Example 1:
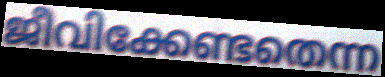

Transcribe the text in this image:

ജീവിക്കേണ്ടതെന്ന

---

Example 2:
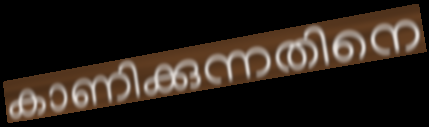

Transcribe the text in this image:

കാണിക്കുന്നതിനെ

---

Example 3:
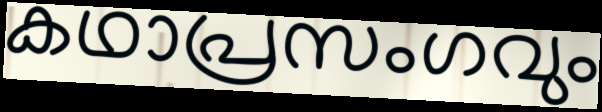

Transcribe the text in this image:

കഥാപ്രസംഗവും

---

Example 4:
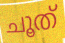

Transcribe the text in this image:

ചൂത്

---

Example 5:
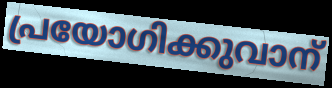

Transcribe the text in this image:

പ്രയോഗിക്കുവാന്